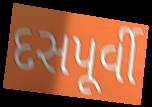
દસપૂર્વી